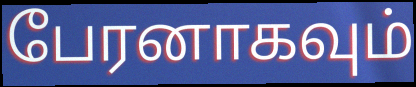
பேரனாகவும்